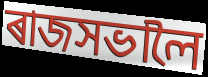
ৰাজসভালৈ